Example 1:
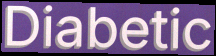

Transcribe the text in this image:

Diabetic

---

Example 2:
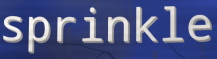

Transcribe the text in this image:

sprinkle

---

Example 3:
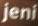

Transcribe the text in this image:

jeni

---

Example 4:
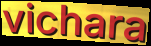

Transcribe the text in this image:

vichara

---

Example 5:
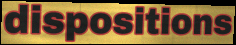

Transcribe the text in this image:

dispositions